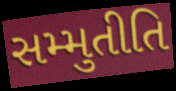
સમ્મુતીતિ